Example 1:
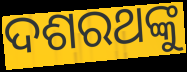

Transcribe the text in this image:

ଦଶରଥଙ୍କୁ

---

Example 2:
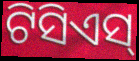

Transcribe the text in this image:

ଟିସିଏସ୍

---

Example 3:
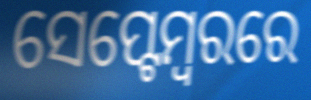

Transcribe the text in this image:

ସେପ୍ଟେମ୍ୱରରେ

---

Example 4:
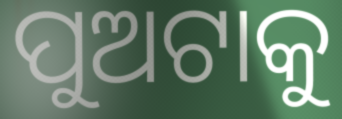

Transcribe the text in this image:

ପୁଅଟାକୁ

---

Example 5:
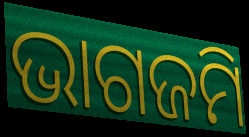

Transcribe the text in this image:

ଭାଗଜମି